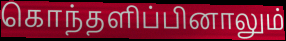
கொந்தளிப்பினாலும்